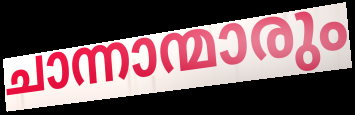
ചാന്നാന്മാരും